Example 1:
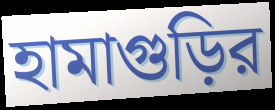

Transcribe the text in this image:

হামাগুড়ির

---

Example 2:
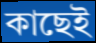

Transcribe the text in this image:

কাছেই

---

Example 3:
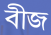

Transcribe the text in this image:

বীজ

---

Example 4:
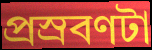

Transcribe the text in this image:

প্রস্রবণটা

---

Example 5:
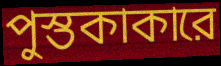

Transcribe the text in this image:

পুস্তকাকারে